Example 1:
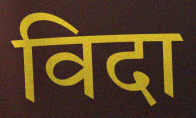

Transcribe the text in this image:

विदा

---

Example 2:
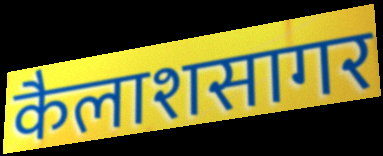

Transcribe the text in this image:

कैलाशसागर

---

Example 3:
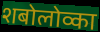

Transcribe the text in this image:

शबोलोव्का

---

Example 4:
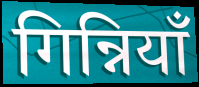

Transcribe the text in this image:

गिन्नियाँ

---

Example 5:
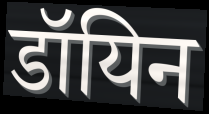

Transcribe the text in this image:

डॉयिन